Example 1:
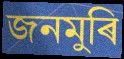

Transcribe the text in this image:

জনমুৰি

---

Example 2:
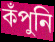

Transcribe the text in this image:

কঁপুনি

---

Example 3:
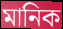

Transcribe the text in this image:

মানিক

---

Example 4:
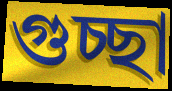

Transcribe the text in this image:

গুচ্ছা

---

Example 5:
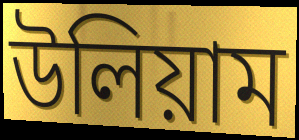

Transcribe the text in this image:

উলিয়াম